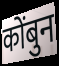
कोंबुन